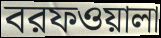
বরফওয়ালা